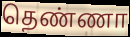
தெண்ணா